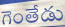
గెంతేడు